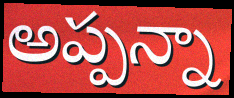
అప్పన్నా